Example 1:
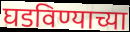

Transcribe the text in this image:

घडविण्याच्या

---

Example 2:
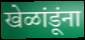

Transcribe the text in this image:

खेळांडूंना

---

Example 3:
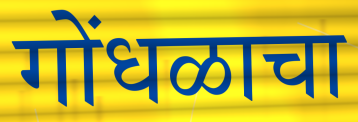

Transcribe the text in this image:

गोंधळाचा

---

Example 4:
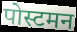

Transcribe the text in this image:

पोस्टमन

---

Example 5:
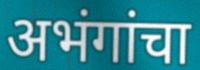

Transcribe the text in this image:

अभंगांचा